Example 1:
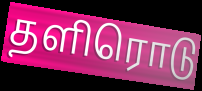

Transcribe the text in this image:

தளிரொடு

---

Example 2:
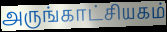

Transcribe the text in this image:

அருங்காட்சியகம்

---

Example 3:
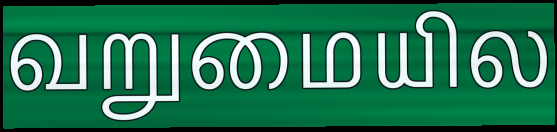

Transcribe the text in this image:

வறுமையில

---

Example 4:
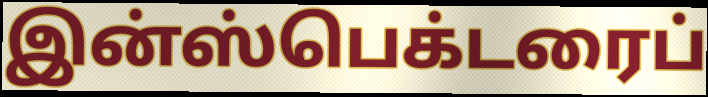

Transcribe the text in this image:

இன்ஸ்பெக்டரைப்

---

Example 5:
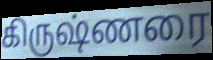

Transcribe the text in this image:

கிருஷ்ணரை